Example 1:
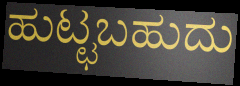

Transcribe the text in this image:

ಹುಟ್ಟಬಹುದು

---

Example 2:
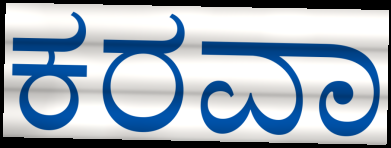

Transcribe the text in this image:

ಕರವಾ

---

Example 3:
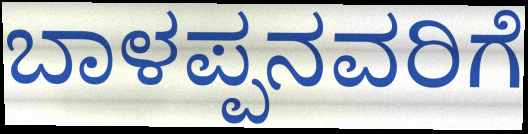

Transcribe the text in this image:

ಬಾಳಪ್ಪನವರಿಗೆ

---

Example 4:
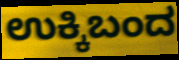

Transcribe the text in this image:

ಉಕ್ಕಿಬಂದ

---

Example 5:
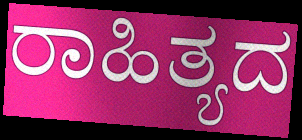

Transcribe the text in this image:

ರಾಹಿತ್ಯದ